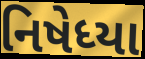
નિષેધ્યા